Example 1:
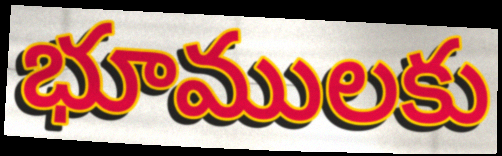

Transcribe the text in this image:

భూములకు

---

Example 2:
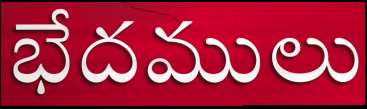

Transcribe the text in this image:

భేదములు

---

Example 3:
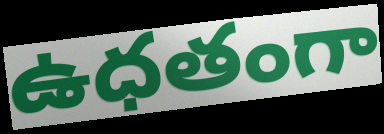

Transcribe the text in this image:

ఉధతంగా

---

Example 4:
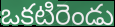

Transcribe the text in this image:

ఒకటిరెండు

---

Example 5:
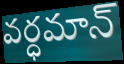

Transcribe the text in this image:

వర్ధమాన్